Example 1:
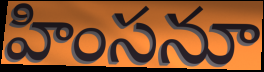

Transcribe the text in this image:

హింసనూ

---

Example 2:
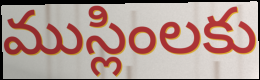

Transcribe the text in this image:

ముస్లింలకు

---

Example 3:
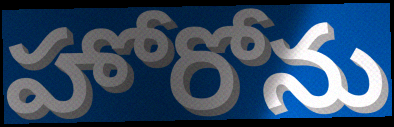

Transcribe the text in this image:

హోరోను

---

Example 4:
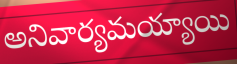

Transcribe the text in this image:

అనివార్యమయ్యాయి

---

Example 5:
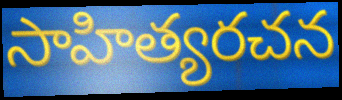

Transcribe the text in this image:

సాహిత్యరచన